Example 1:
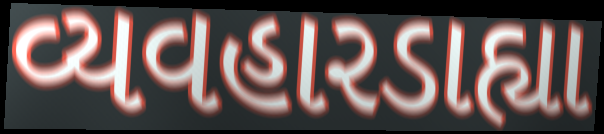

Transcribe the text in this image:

વ્યવહારડાહ્યા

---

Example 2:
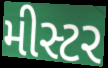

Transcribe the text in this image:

મીસ્ટર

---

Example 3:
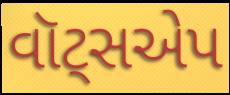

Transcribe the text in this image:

વૉટ્સએપ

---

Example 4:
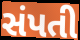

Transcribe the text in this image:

સંપતી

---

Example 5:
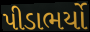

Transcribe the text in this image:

પીડાભર્યો